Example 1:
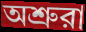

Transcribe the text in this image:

অশ্রুরা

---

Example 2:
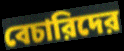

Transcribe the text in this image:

বেচারিদের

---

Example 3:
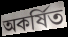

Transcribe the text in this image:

অকর্ষিত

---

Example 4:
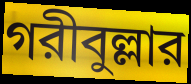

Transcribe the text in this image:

গরীবুল্লার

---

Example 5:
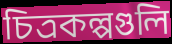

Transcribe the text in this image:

চিত্রকল্পগুলি